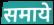
समाये